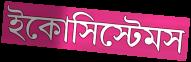
ইকোসিস্টেমস